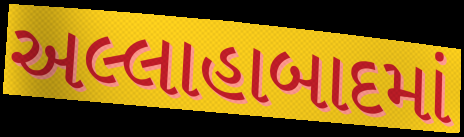
અલ્લાહાબાદમાં